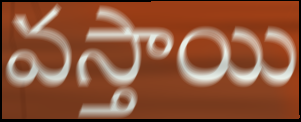
వస్తాయి